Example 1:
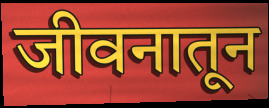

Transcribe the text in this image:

जीवनातून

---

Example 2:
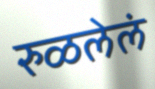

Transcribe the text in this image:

रुळलेलं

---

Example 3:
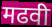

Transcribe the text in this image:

मढवी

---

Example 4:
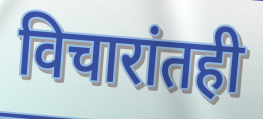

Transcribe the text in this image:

विचारांतही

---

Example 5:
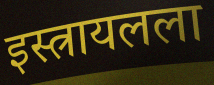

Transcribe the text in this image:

इस्त्रायलला